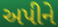
અપીને